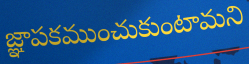
జ్ఞాపకముంచుకుంటామని